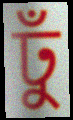
ঢুঁ